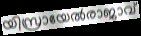
യിസ്രായേൽരാജാവ്